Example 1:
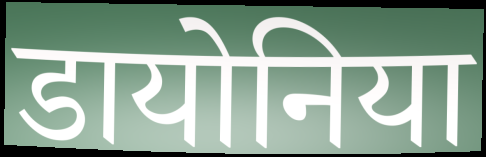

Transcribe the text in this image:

डायोनिया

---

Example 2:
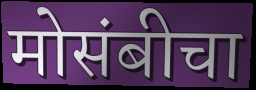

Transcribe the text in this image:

मोसंबीचा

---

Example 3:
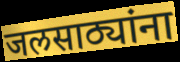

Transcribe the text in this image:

जलसाठ्यांना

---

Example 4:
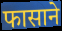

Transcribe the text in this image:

फासाने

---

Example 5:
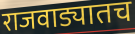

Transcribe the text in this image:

राजवाड्यातच